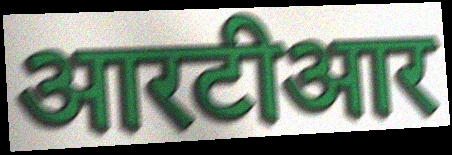
आरटीआर